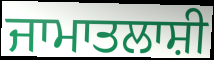
ਜਾਮਾਤਲਾਸ਼ੀ